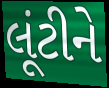
લૂંટીને